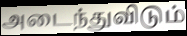
அடைந்துவிடும்